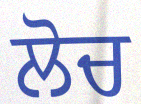
ਲੋਚ